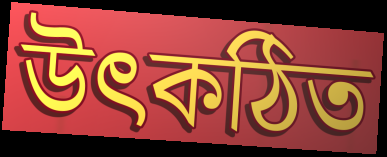
উৎকঠিত